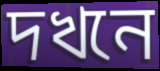
দখনে